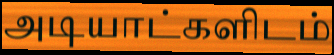
அடியாட்களிடம்